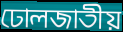
ঢোলজাতীয়